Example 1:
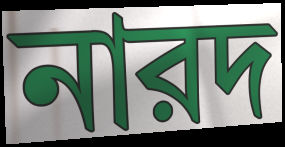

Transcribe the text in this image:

নারদ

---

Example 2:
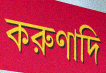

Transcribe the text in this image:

করুণাদি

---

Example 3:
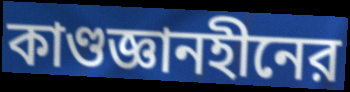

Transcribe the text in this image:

কাণ্ডজ্ঞানহীনের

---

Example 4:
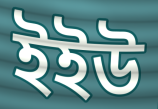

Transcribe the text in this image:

ইইউ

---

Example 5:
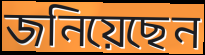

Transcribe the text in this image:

জনিয়েছেন